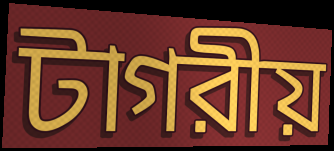
টাগরীয়